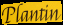
Plantin